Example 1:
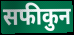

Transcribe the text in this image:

सफीकुन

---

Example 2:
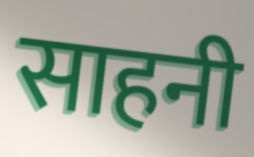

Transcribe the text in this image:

साहनी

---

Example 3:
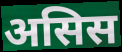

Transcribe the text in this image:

असिस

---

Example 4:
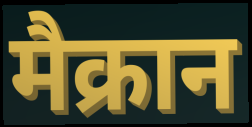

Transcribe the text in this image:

मैक्रान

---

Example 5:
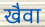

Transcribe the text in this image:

खैवा